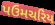
પઉમચરિય